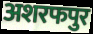
अशरफपुर